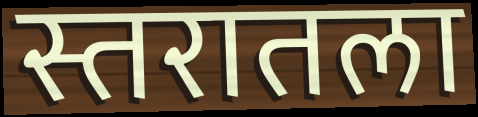
स्तरातला